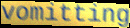
vomitting